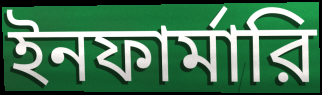
ইনফার্মারি